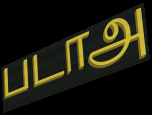
படாஅ